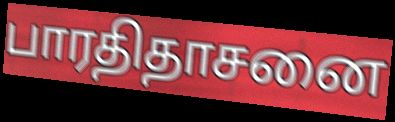
பாரதிதாசனை